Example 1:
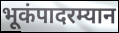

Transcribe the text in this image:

भूकंपादरम्यान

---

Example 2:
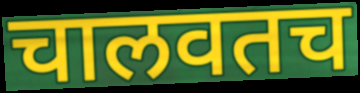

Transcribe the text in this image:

चालवतच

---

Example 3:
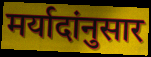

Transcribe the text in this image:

मर्यादांनुसार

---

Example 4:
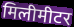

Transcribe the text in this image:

मिलीमीटर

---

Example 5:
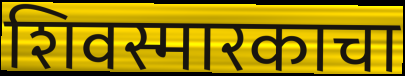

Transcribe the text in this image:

शिवस्मारकाचा